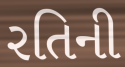
રતિની